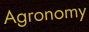
Agronomy